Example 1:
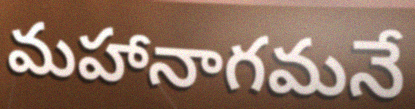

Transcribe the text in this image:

మహానాగమనే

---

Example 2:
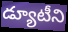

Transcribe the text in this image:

డ్యూటీని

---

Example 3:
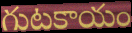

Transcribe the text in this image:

గుటకాయం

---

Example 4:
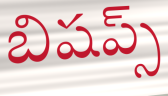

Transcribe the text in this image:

బిషప్స్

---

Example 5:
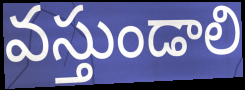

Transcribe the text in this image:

వస్తుండాలి